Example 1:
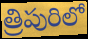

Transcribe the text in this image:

త్రిపురిలో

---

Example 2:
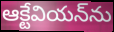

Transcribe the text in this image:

ఆక్టేవియన్‌ను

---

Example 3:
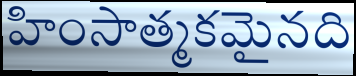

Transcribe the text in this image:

హింసాత్మకమైనది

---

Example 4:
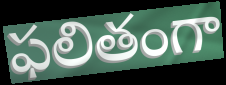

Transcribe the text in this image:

ఫలితంగా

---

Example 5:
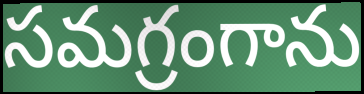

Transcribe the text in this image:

సమగ్రంగాను